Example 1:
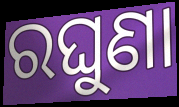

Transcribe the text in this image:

ରଘୁଣା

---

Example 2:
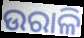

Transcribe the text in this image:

ଉରାଳି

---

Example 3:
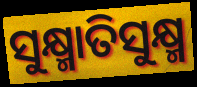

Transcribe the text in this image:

ସୁକ୍ଷ୍ମାତିସୁକ୍ଷ୍ମ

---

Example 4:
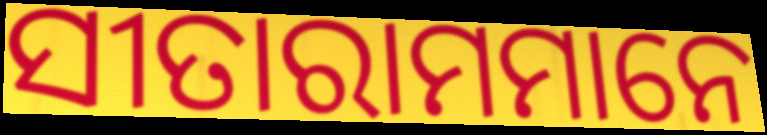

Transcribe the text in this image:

ସୀତାରାମମାନେ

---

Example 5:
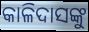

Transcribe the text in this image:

କାଳିଦାସଙ୍କୁ